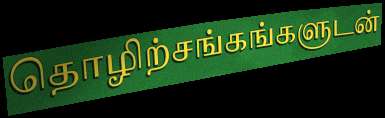
தொழிற்சங்கங்களுடன்